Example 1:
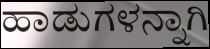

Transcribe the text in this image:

ಹಾಡುಗಳನ್ನಾಗಿ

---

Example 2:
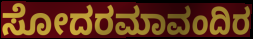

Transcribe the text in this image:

ಸೋದರಮಾವಂದಿರ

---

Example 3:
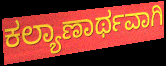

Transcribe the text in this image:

ಕಲ್ಯಾಣಾರ್ಥವಾಗಿ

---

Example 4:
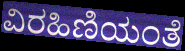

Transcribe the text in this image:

ವಿರಹಿಣಿಯಂತೆ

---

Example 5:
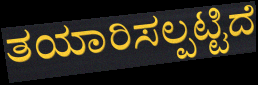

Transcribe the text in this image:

ತಯಾರಿಸಲ್ಪಟ್ಟಿದೆ